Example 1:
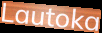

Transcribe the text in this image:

Lautoka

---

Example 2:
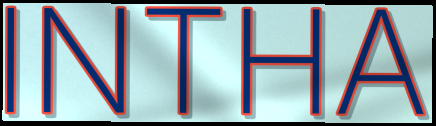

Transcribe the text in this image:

INTHA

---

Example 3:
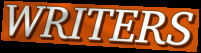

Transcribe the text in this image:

WRITERS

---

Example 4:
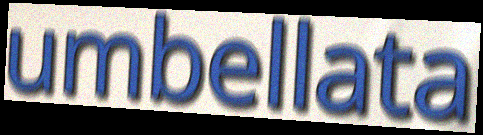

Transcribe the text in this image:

umbellata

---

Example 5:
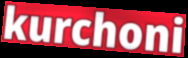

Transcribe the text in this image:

kurchoni